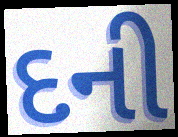
દની